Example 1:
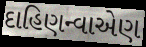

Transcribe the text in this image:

દાહિણન્વાએણ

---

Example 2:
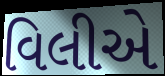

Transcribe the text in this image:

વિલીએ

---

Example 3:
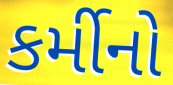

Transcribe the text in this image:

કર્મીનો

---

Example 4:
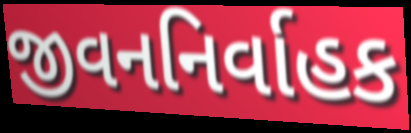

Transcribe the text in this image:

જીવનનિર્વાહક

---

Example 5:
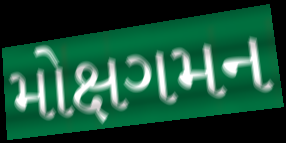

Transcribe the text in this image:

મોક્ષગમન